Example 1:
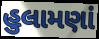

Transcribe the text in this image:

હુલામણાં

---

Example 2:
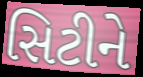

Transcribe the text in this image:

સિટીને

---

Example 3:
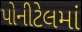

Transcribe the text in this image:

પોનીટેલમાં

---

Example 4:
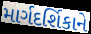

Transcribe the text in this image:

માર્ગદર્શિકાને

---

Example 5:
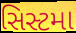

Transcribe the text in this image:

સિસ્ટમા